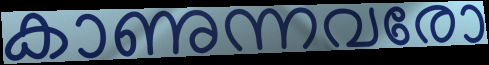
കാണുന്നവരോ